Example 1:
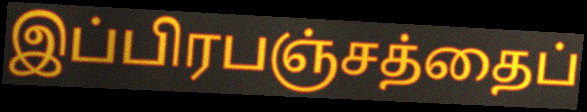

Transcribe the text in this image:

இப்பிரபஞ்சத்தைப்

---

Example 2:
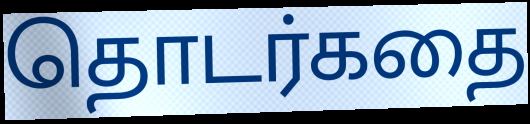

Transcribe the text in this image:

தொடர்கதை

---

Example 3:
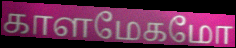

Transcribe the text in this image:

காளமேகமோ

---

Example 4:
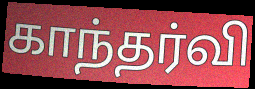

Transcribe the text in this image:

காந்தர்வி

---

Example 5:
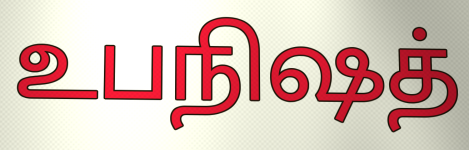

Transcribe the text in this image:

உபநிஷத்